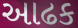
આઢક